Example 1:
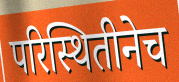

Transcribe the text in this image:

परिस्थितीनेच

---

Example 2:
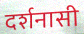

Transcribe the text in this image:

दर्शनासी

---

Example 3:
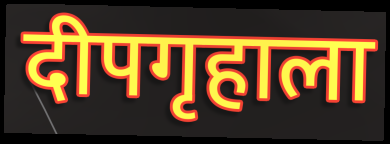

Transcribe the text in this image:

दीपगृहाला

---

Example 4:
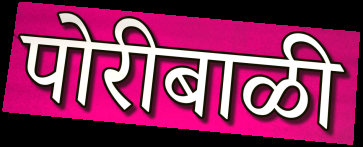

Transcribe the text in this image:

पोरीबाळी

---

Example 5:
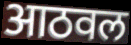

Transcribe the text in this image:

आठवल